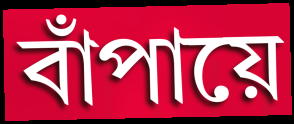
বাঁপায়ে